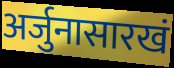
अर्जुनासारखं